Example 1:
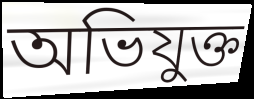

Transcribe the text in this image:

অভিযুক্ত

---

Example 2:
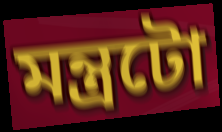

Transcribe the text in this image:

মন্ত্ৰটো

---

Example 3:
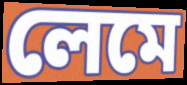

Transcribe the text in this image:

লেমে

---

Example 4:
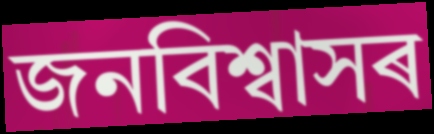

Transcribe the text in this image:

জনবিশ্বাসৰ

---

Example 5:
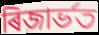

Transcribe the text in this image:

ৰিজাৰ্ভত